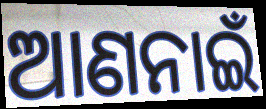
ଆଣନାଇଁ